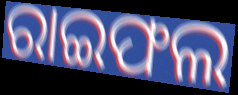
ରାଇଫଲ